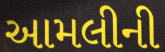
આમલીની